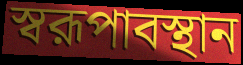
স্বরূপাবস্থান